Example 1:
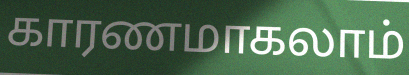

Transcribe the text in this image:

காரணமாகலாம்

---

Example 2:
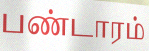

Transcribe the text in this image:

பண்டாரம்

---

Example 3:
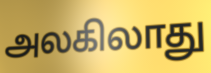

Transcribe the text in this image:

அலகிலாது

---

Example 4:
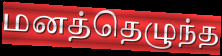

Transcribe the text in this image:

மனத்தெழுந்த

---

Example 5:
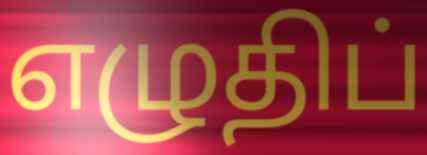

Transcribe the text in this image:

எழுதிப்